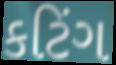
કટિંગ